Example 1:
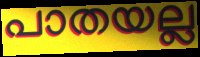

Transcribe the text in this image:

പാതയല്ല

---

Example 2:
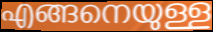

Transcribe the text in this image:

എങ്ങനെയുള്ള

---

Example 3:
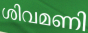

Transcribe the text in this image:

ശിവമണി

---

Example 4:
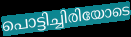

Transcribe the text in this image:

പൊട്ടിച്ചിരിയോടെ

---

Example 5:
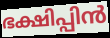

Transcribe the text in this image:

ഭക്ഷിപ്പിൻ